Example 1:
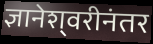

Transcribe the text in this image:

ज्ञानेश्वरीनंतर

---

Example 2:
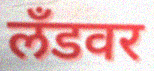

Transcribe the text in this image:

लँडवर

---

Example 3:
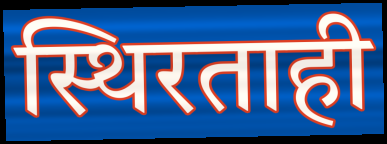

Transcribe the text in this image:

स्थिरताही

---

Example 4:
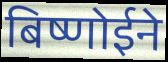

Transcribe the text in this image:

बिष्णोईने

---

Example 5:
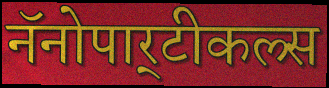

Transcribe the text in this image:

नॅनोपार्टीकल्स